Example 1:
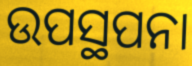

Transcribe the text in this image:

ଉପସ୍ଥପନା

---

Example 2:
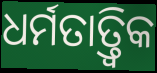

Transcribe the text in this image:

ଧର୍ମତାତ୍ତ୍ଵିକ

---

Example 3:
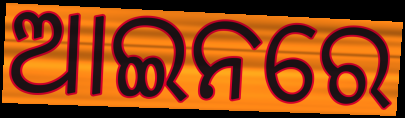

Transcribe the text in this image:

ଆଇନରେ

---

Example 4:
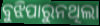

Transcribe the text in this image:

ବୁଝିପାରୁନଥିଲା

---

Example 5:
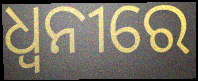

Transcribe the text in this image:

ଧ୍ଵନୀରେ